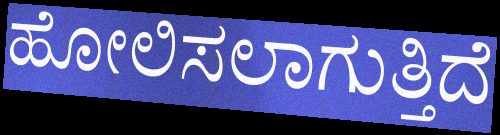
ಹೋಲಿಸಲಾಗುತ್ತಿದೆ